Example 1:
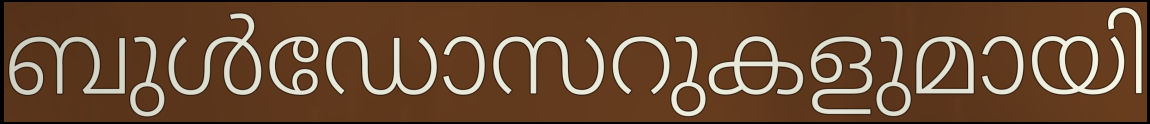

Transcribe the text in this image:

ബുൾഡോസറുകളുമായി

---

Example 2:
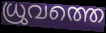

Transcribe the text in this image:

ധ്രുവത്തെ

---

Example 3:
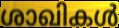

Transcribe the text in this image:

ശാഖികൾ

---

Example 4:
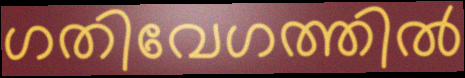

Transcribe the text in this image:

ഗതിവേഗത്തിൽ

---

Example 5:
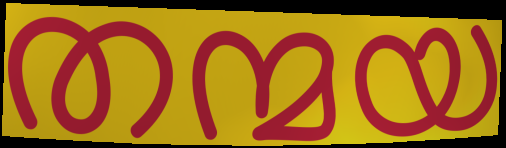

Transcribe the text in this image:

തന്മയ